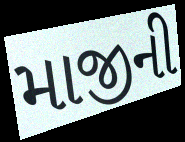
માજીની